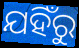
ଯହିଁରୁ